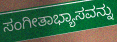
ಸಂಗೀತಾಭ್ಯಾಸವನ್ನು